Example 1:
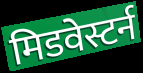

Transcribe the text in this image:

मिडवेस्टर्न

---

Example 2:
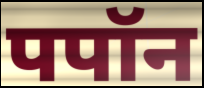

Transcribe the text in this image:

पपॉन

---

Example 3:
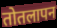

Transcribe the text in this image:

तोतलापन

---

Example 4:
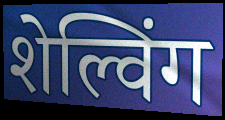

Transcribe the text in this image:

शेल्विंग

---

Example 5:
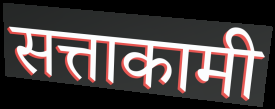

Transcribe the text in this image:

सत्ताकामी